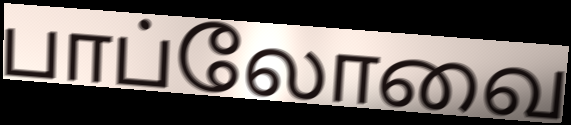
பாப்லோவை